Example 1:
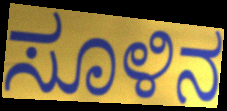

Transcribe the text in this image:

ಸೂಳಿನ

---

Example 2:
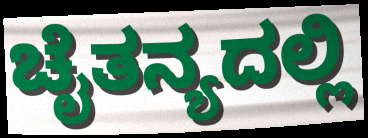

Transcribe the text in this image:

ಚೈತನ್ಯದಲ್ಲಿ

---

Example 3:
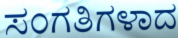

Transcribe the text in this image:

ಸಂಗತಿಗಳಾದ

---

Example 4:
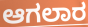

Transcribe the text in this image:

ಆಗಲಾರ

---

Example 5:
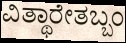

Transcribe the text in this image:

ವಿತ್ಥಾರೇತಬ್ಬಂ